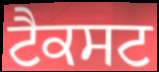
ਟੈਕਸਟ